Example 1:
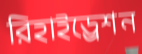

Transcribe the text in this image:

রিহাইড্রেশন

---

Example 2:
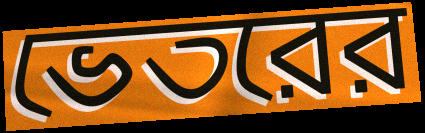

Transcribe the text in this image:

ভেতরের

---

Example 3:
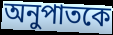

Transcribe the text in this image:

অনুপাতকে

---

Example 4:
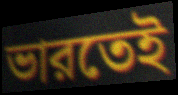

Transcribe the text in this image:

ভারতেই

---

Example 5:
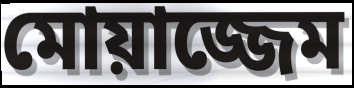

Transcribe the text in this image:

মোয়াজ্জেম